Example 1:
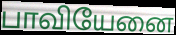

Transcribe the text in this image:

பாவியேனை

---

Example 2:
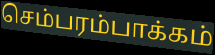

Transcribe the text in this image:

செம்பரம்பாக்கம்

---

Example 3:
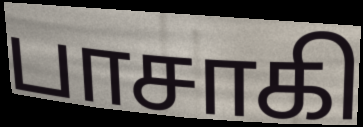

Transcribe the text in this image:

பாசாகி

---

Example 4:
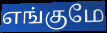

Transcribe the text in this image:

எங்குமே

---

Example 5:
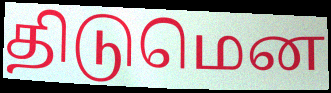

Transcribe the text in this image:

திடுமென